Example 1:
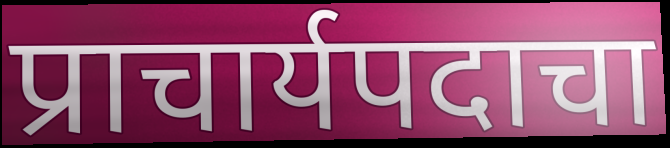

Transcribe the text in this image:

प्राचार्यपदाचा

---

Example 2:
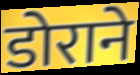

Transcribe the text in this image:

डोराने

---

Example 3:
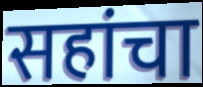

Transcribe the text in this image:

सहांचा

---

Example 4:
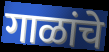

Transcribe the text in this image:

गाळांचे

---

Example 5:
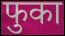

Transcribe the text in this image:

फुका